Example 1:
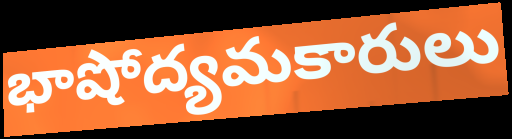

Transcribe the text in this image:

భాషోద్యమకారులు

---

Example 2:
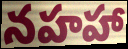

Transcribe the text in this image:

నహహా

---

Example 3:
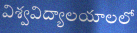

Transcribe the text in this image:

విశ్వవిద్యాలయాలలో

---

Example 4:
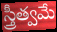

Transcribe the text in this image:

స్త్రీత్వమే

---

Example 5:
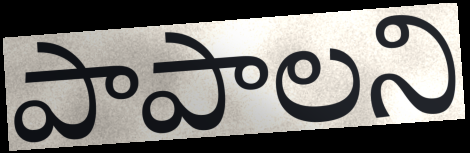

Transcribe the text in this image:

పాపాలని